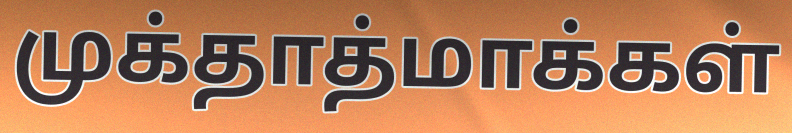
முக்தாத்மாக்கள்